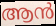
ആൻ